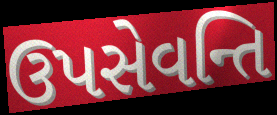
ઉપસેવન્તિ